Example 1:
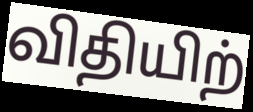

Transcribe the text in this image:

விதியிற்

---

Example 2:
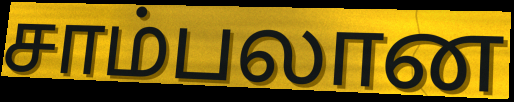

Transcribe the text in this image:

சாம்பலான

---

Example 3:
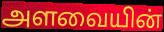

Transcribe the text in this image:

அளவையின்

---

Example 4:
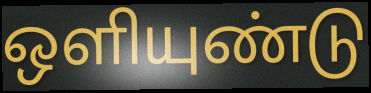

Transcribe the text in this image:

ஒளியுண்டு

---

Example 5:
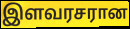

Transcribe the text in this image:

இளவரசரான